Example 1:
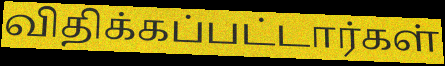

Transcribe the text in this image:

விதிக்கப்பட்டார்கள்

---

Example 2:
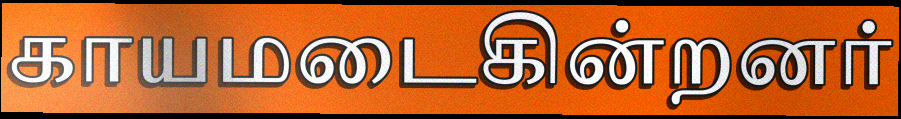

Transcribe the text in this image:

காயமடைகின்றனர்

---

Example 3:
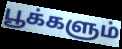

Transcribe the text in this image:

பூக்களும்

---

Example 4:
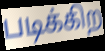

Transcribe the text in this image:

படிக்கிற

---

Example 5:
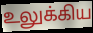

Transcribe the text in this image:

உலுக்கிய